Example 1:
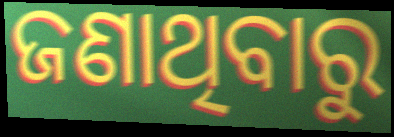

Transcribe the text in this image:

ଜଣାଥିବାରୁ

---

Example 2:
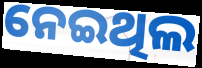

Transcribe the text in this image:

ନେଇଥିଲ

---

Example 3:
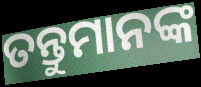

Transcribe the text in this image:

ତନ୍ତୁମାନଙ୍କ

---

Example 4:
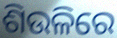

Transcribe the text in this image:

ଶିଉଳିରେ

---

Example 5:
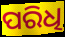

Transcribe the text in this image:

ପରିଧି